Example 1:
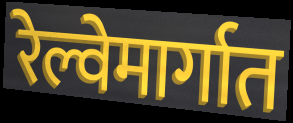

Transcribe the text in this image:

रेल्वेमार्गात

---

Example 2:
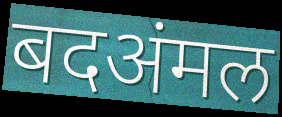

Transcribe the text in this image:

बदअंमल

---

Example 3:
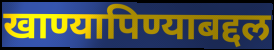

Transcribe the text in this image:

खाण्यापिण्याबद्दल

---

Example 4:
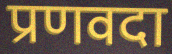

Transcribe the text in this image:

प्रणवदा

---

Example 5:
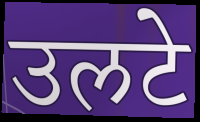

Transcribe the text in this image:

उलटे